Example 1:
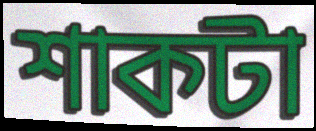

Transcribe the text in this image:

শাকটা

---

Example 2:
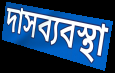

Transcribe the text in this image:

দাসব্যবস্থা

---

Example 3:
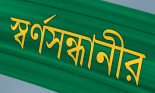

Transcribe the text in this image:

স্বর্ণসন্ধানীর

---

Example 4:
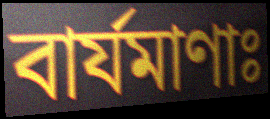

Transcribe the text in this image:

বার্যমাণাঃ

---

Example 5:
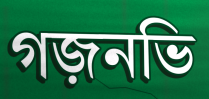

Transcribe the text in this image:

গজ়নভি